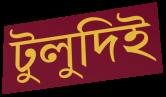
টুলুদিই